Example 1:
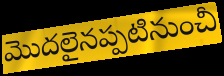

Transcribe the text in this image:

మొదలైనప్పటినుంచీ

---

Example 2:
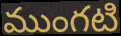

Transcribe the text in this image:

ముంగటి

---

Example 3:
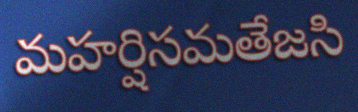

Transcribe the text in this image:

మహర్షిసమతేజసి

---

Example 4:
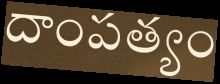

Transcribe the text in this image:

దాంపత్యం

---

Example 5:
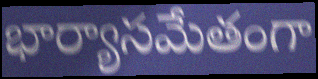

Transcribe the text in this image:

భార్యాసమేతంగా